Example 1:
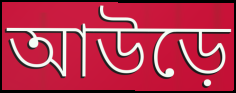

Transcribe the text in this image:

আউড়ে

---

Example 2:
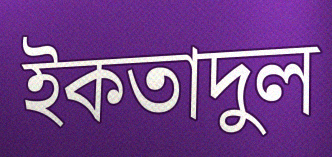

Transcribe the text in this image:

ইকতাদুল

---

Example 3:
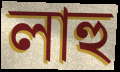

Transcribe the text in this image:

লাহু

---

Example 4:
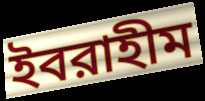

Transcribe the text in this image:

ইবরাহীম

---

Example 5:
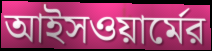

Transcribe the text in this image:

আইসওয়ার্মের